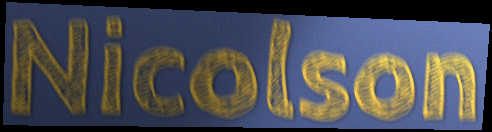
Nicolson